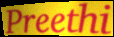
Preethi